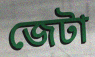
জেটা